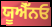
ਯੂਐੱਨਓ